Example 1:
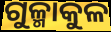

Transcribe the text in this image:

ଗୁଳ୍ମାକୁଳ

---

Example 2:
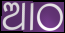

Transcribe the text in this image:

ଆଠ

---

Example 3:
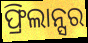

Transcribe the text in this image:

ଫ୍ରିଲାନ୍ସର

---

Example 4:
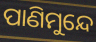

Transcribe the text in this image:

ପାଣିମୁନ୍ଦେ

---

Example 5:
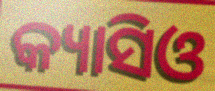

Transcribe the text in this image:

କ୍ୟାସିଓ